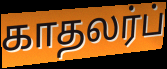
காதலர்ப்